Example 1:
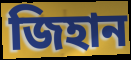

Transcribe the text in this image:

জিহান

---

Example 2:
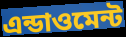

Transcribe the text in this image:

এন্ডাওমেন্ট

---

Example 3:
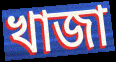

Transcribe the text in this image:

খাজা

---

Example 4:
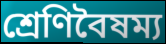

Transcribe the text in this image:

শ্রেণিবৈষম্য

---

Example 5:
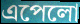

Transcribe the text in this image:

এপেলো